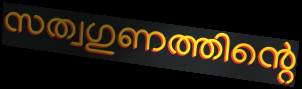
സത്വഗുണത്തിന്റെ